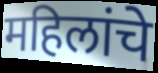
महिलांचे